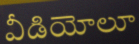
వీడియోలూ